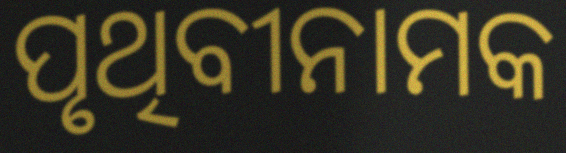
ପୃଥିବୀନାମକ